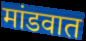
मांडवात